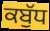
ਕਬੁੱਧ